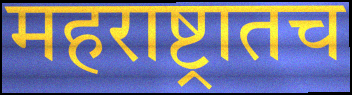
महराष्ट्रातच